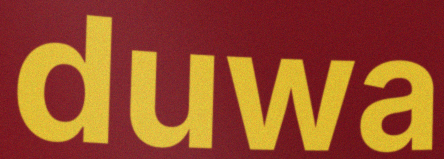
duwa